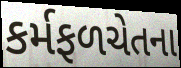
કર્મફળચેતના